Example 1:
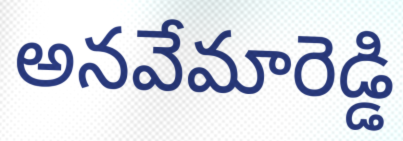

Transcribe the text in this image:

అనవేమారెడ్డి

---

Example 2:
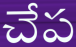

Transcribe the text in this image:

చేప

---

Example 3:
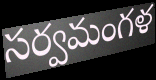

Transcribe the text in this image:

సర్వమంగళ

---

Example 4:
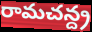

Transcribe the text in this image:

రామచన్ద్ర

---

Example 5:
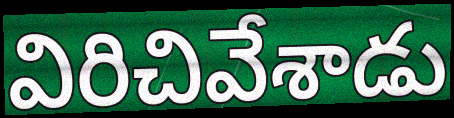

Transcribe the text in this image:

విరిచివేశాడు